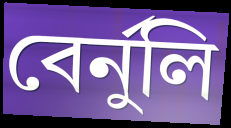
বেৰ্নুলি